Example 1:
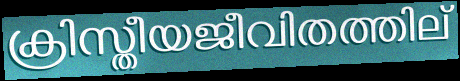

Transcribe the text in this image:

ക്രിസ്തീയജീവിതത്തില്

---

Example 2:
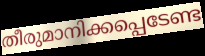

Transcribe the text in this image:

തീരുമാനിക്കപ്പെടേണ്ട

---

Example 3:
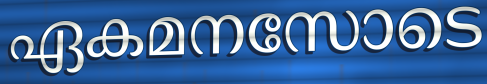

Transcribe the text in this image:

ഏകമനസോടെ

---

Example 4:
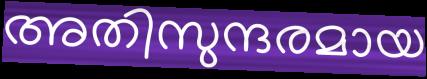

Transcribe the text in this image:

അതിസുന്ദരമായ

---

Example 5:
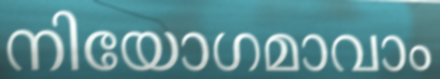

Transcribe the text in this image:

നിയോഗമാവാം